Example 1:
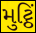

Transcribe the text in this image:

મુટ્ઠિં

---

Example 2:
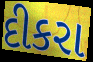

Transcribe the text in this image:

દીકરા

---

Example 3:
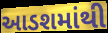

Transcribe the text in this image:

આડશમાંથી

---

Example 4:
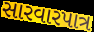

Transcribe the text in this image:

સારવારપાત્ર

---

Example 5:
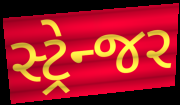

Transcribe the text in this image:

સ્ટ્રેન્જર